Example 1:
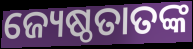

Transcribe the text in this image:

ଜ୍ୟେଷ୍ଠତାତଙ୍କ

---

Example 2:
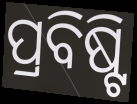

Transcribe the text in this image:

ପ୍ରବିଷ୍ଟି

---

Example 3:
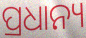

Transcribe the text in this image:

ପ୍ରଧାନ୍ୟ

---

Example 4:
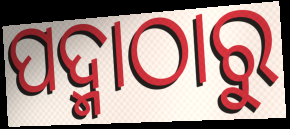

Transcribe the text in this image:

ପଦ୍ମାଠାରୁ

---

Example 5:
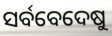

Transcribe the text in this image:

ସର୍ବବେଦେଷୁ